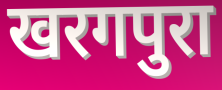
खरगपुरा